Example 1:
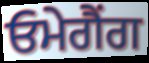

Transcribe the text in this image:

ਓਮੇਗੈਂਗ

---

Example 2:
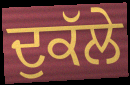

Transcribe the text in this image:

ਦੁਕੱਲੇ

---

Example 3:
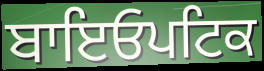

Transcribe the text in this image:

ਬਾਇਓਪਟਿਕ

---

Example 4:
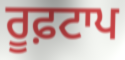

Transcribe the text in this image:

ਰੂਫ਼ਟਾਪ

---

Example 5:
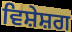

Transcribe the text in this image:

ਵਿਸ਼ੇਸ਼ਗ